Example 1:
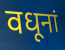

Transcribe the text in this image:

वधूनां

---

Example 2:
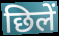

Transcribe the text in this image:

छिलें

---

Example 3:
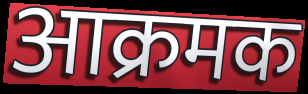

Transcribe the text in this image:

आक्रमक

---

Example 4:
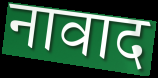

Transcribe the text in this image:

नावाद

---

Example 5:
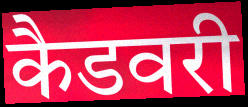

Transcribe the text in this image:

कैडवरी